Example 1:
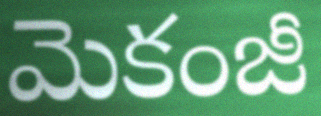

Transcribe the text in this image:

మెకంజీ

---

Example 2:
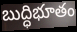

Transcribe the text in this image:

బుద్ధిభూతం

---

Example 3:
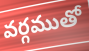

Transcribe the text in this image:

వర్గముతో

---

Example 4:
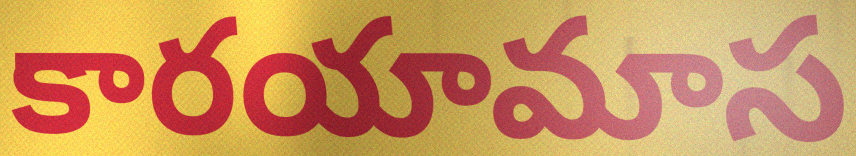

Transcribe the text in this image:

కారయామాస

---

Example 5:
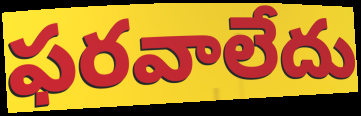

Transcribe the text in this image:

ఫరవాలేదు